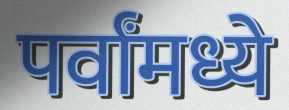
पर्वांमध्ये